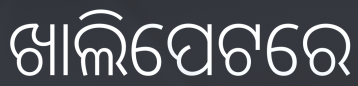
ଖାଲିପେଟରେ